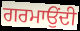
ਗਰਮਾਉਂਦੀ